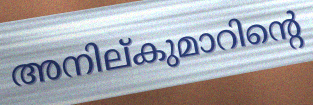
അനില്കുമാറിന്റെ